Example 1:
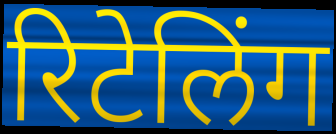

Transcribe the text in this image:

रिटेलिंग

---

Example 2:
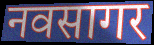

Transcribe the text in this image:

नवसागर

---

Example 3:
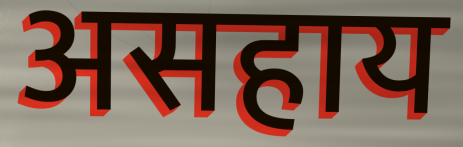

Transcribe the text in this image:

असहाय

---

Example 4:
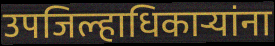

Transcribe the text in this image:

उपजिल्हाधिकाऱ्यांना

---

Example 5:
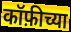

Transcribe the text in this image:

कॉफ़ीच्या